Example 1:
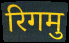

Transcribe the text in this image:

रिगमु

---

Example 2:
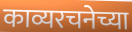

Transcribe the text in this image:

काव्यरचनेच्या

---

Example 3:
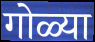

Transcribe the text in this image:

गोळ्या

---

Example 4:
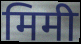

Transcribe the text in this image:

मिमी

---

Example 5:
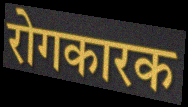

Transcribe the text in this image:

रोगकारक